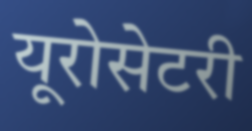
यूरोसेटरी